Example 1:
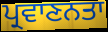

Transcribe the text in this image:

ਪ੍ਰਵਾਣਨਤਾ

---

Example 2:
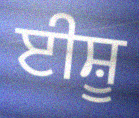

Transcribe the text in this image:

ਈਸ਼ੂ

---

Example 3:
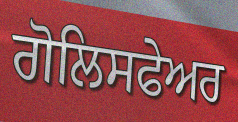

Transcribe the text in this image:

ਗੋਲਿਸਫੇਅਰ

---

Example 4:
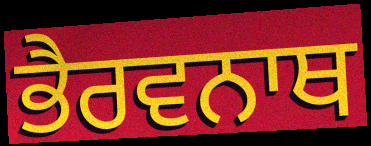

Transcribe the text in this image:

ਭੈਰਵਨਾਥ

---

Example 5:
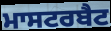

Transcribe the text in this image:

ਮਾਸਟਰਬੈਟ